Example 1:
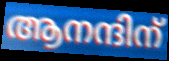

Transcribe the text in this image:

ആനന്ദിന്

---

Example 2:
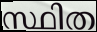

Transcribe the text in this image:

സ്ഥിത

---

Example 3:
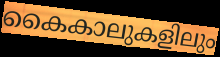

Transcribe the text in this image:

കൈകാലുകളിലും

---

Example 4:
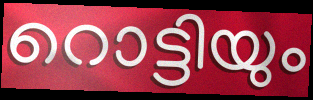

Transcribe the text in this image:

റൊട്ടിയും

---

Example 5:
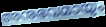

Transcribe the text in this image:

അനുഭവമായും